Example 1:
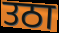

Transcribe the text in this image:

उठा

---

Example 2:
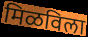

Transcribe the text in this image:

मिळविला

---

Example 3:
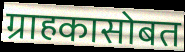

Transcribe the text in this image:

ग्राहकासोबत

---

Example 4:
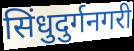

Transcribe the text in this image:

सिंधुदुर्गनगरी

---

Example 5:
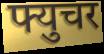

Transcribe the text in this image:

फ्युचर